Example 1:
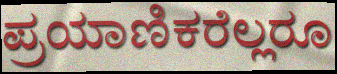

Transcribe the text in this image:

ಪ್ರಯಾಣಿಕರೆಲ್ಲರೂ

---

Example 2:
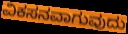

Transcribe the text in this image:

ವಿಕಸನವಾಗುವುದು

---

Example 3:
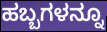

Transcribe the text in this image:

ಹಬ್ಬಗಳನ್ನೂ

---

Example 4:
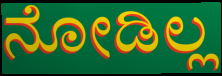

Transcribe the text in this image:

ನೋಡಿಲ್ಲ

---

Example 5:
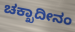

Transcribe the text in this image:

ಚಕ್ಖಾದೀನಂ